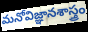
మనోవిజ్ఞానశాస్త్రం